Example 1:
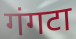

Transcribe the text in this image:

गंगटा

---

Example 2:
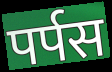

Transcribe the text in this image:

पर्पस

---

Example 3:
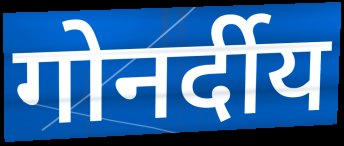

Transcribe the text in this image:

गोनर्दीय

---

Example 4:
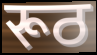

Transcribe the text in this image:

रूठ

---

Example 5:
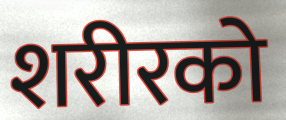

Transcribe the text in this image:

शरीरको